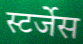
स्टर्जेस